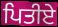
ਪਿਤੀਏ